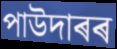
পাউদাৰৰ